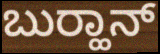
ಬುರ‍್ಹಾನ್